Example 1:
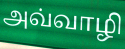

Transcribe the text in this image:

அவ்வாழி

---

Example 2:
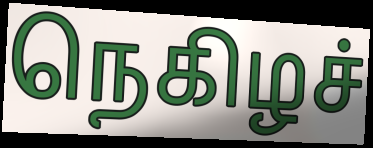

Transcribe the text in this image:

நெகிழச்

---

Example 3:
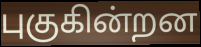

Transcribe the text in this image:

புகுகின்றன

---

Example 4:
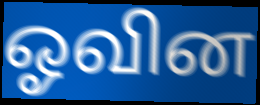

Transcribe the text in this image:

ஓவின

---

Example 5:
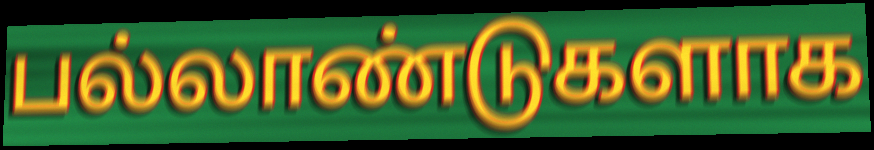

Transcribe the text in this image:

பல்லாண்டுகளாக